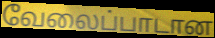
வேலைப்பாடான